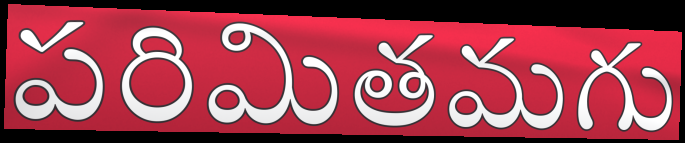
పరిమితమగు